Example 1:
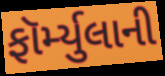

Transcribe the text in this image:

ફૉર્મ્યુલાની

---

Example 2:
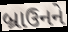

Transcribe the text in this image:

બ્રાઉનને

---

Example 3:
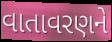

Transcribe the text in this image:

વાતાવરણને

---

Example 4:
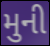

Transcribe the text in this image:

મુની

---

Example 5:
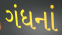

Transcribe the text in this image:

ગંધનાં